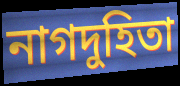
নাগদুহিতা